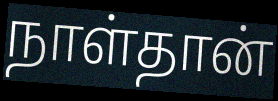
நாள்தான்